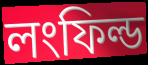
লংফিল্ড